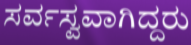
ಸರ್ವಸ್ವವಾಗಿದ್ದರು